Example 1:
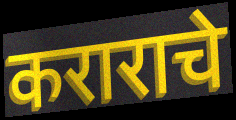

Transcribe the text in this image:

कराराचे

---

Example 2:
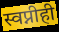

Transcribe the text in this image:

स्वप्नीही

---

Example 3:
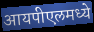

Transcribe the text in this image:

आयपीएलमध्ये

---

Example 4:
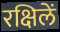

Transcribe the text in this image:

रक्षिलें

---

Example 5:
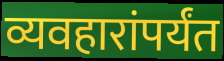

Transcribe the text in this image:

व्यवहारांपर्यंत